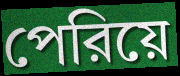
পেরিয়ে